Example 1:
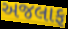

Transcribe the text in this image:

અજલાફ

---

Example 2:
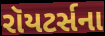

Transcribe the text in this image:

રૉયટર્સના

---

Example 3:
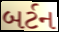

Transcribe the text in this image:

બર્ટન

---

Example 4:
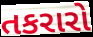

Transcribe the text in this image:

તકરારો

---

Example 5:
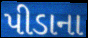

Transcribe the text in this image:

પીડાના